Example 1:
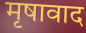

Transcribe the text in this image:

मृषावाद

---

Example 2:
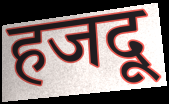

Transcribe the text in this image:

हजदू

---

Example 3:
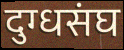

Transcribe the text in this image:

दुग्धसंघ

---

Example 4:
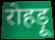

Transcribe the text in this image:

रोहड़ू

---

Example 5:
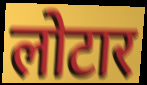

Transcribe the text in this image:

लोटार